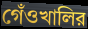
গেঁওখালির